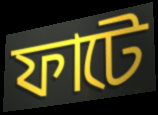
ফাটে